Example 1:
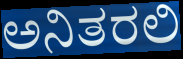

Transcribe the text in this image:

ಅನಿತರಲಿ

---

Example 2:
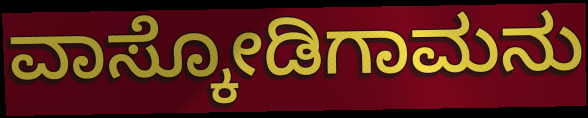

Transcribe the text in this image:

ವಾಸ್ಕೋಡಿಗಾಮನು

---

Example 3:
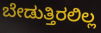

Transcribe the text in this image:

ಬೇಡುತ್ತಿರಲಿಲ್ಲ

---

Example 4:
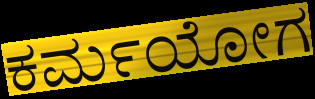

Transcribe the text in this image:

ಕರ್ಮಯೋಗ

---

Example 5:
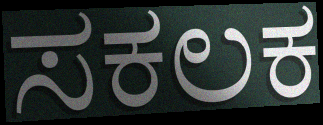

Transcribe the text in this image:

ಸಕಲಕ